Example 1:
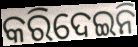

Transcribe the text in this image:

କରିଦେଇନି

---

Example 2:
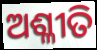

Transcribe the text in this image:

ଅଶ୍ଳୀତି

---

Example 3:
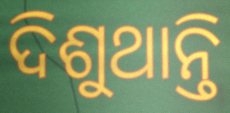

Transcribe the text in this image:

ଦିଶୁଥାନ୍ତି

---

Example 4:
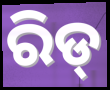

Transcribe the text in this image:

ରିଡ୍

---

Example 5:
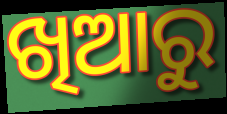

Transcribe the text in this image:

ଖିଆରୁ